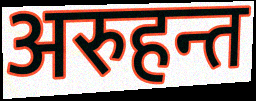
अरुहन्त